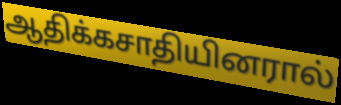
ஆதிக்கசாதியினரால்